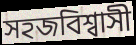
সহজবিশ্বাসী